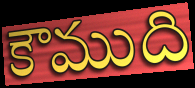
కౌముది